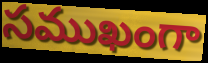
సముఖంగా